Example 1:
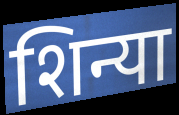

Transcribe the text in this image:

शिन्या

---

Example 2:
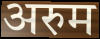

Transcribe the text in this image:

अरुम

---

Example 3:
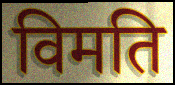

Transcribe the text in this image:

विमति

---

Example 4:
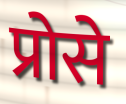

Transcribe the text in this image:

प्रोसे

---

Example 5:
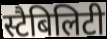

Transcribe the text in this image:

स्टैबिलिटी